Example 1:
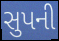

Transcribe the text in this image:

સુપની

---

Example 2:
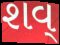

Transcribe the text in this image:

શવ્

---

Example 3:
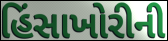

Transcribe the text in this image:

હિંસાખોરીની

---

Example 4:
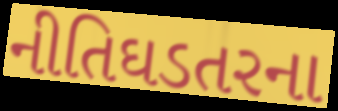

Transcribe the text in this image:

નીતિઘડતરના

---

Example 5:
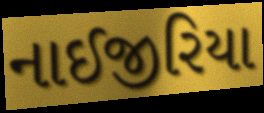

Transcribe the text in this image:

નાઈજીરિયા